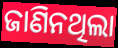
ଜାଣିନଥିଲା